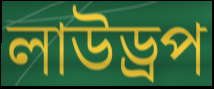
লাউড্রপ